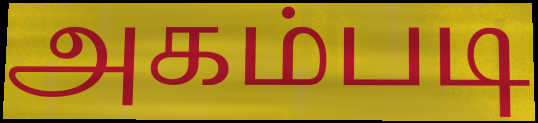
அகம்படி